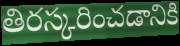
తిరస్కరించడానికి